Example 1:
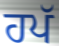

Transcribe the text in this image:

ਹਪੱ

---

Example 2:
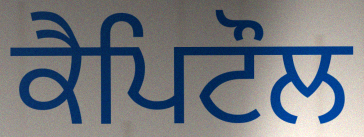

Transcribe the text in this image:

ਕੈਪਿਟੌਲ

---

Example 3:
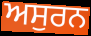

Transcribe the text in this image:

ਅਸੁਰਨ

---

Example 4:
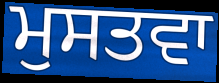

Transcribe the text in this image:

ਮੁਸਤਵਾ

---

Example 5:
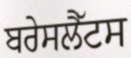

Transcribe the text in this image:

ਬਰੇਸਲੈੱਟਸ